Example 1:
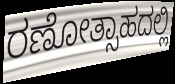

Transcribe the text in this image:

ರಣೋತ್ಸಾಹದಲ್ಲಿ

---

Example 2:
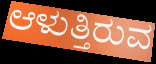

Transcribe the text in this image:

ಆಳುತ್ತಿರುವ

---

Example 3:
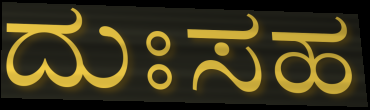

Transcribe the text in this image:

ದುಃಸಹ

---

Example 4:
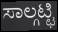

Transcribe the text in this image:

ಸಾಲ್ಗಟ್ಟಿ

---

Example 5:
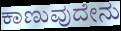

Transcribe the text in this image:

ಕಾಣುವುದೇನು